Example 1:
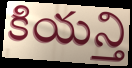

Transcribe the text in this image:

కియన్తి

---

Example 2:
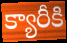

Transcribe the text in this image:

క్యారీకి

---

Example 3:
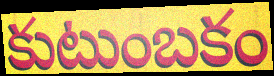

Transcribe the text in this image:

కుటుంబకం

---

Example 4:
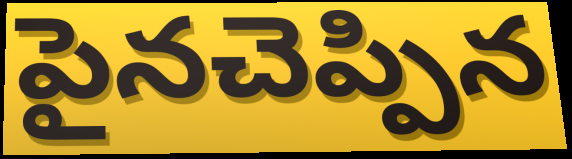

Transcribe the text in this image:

పైనచెప్పిన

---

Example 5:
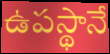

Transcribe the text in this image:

ఉపస్థానే